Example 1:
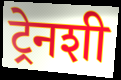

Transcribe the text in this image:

ट्रेनशी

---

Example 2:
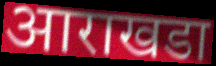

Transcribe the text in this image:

आराखडा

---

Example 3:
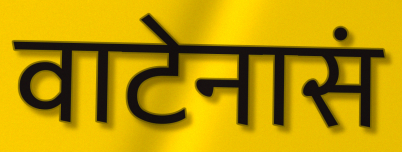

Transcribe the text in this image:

वाटेनासं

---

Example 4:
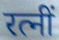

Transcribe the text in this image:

रत्नीं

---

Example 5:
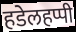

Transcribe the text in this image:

हडेलहप्पी